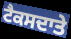
ਟੈਕਸਦਾਤੇ